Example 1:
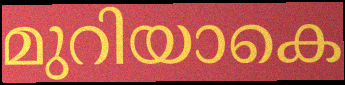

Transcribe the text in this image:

മുറിയാകെ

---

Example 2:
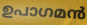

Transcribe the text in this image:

ഉപാഗമൻ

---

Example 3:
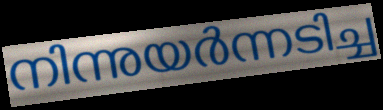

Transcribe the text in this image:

നിന്നുയർന്നടിച്ച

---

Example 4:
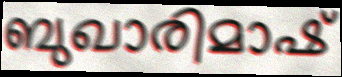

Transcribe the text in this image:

ബുഖാരിമാഷ്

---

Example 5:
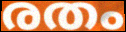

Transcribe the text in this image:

രതം